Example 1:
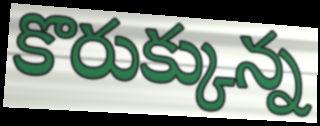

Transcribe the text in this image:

కొరుక్కున్న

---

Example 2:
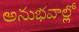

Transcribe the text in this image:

అనుభవాల్లో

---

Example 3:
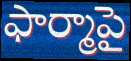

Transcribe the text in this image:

ఫార్మాపై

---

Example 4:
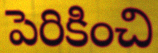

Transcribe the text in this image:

పెరికించి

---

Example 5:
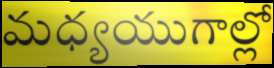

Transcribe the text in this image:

మధ్యయుగాల్లో